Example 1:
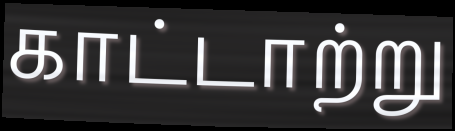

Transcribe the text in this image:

காட்டாற்று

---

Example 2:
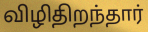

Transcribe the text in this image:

விழிதிறந்தார்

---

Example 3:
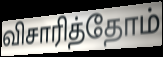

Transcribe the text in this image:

விசாரித்தோம்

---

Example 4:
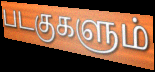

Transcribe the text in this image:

படகுகளும்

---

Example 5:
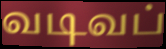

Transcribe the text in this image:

வடிவப்